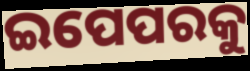
ଇପେପରକୁ